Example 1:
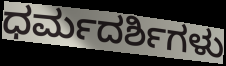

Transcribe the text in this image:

ಧರ್ಮದರ್ಶಿಗಳು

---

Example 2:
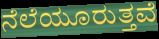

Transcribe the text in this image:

ನೆಲೆಯೂರುತ್ತವೆ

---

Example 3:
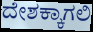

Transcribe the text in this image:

ದೇಶಕ್ಕಾಗಲಿ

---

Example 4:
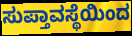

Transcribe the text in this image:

ಸುಪ್ತಾವಸ್ಥೆಯಿಂದ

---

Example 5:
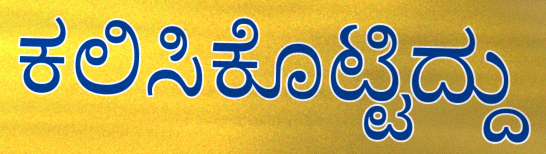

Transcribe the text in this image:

ಕಲಿಸಿಕೊಟ್ಟಿದ್ದು